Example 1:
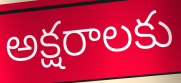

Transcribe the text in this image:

అక్షరాలకు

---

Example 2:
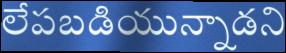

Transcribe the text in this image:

లేపబడియున్నాడని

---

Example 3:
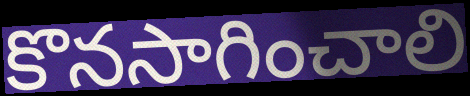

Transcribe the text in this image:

కొనసాగించాలి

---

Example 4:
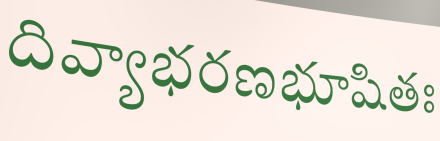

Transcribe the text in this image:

దివ్యాభరణభూషితః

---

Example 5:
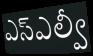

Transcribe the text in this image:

ఎస్ఎల్వీ